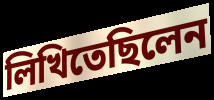
লিখিতেছিলেন